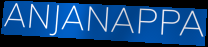
ANJANAPPA